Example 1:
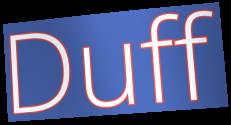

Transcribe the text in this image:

Duff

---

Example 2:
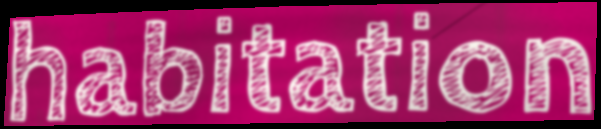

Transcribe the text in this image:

habitation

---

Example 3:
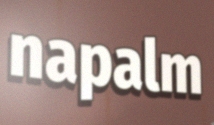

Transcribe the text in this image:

napalm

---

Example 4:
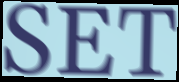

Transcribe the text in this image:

SET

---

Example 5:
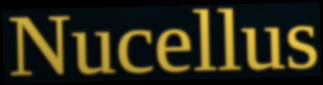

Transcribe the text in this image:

Nucellus